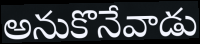
అనుకొనేవాడు